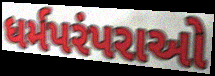
ધર્મપરંપરાઓ